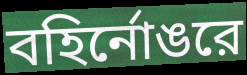
বহির্নোঙরে